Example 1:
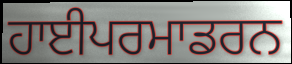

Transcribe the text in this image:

ਹਾਈਪਰਮਾਡਰਨ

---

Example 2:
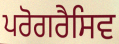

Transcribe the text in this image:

ਪਰੋਗਰੈਸਿਵ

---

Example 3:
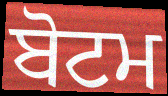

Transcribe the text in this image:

ਬੋਟਮ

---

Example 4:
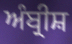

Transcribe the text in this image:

ਅੰਬ੍ਰੀਸ਼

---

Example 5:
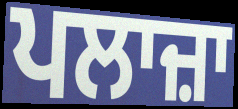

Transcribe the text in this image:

ਪਲਾਜ਼ਾ